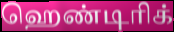
ஹெண்டிரிக்